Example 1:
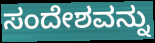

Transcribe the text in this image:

ಸಂದೇಶವನ್ನು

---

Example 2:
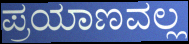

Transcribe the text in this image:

ಪ್ರಯಾಣವಲ್ಲ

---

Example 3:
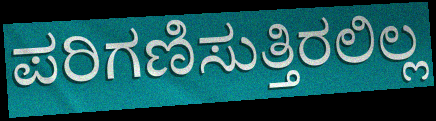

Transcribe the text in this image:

ಪರಿಗಣಿಸುತ್ತಿರಲಿಲ್ಲ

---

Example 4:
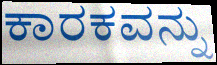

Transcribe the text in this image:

ಕಾರಕವನ್ನು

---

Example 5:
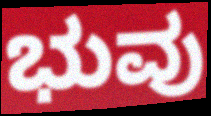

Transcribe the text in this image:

ಭುವು